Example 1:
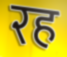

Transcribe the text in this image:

रह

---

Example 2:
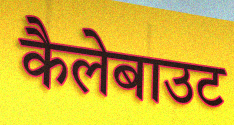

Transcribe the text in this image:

कैलेबाउट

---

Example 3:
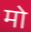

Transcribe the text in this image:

मो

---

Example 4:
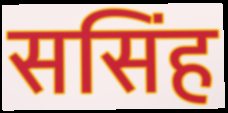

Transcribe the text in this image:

ससिंह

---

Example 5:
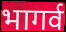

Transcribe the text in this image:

भागर्व